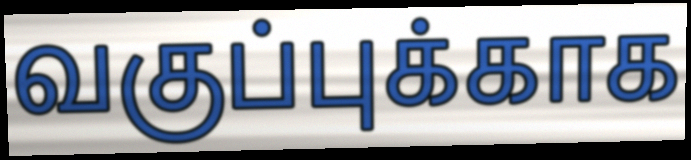
வகுப்புக்காக